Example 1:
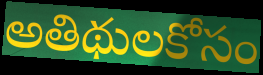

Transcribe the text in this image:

అతిథులకోసం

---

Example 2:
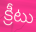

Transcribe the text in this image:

క్రీటు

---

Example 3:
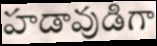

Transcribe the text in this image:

హడావుడిగా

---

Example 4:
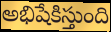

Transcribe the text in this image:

అభిషేకిస్తుంది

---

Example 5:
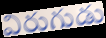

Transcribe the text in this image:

విరుగుడు